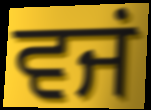
ਵਜਂ